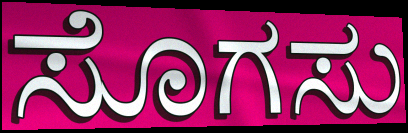
ಸೊಗಸು